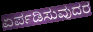
ಏರ್ಪಡಿಸುವುದರ